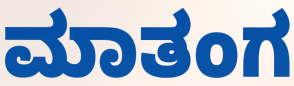
ಮಾತಂಗ